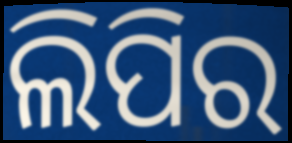
ଲିପିର